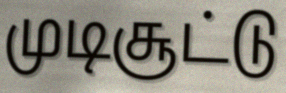
முடிசூட்டு